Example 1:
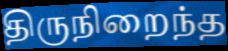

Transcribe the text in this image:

திருநிறைந்த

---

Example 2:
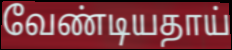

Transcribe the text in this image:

வேண்டியதாய்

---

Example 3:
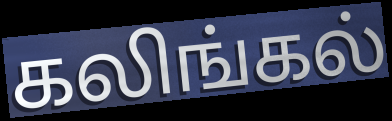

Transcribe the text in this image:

கலிங்கல்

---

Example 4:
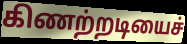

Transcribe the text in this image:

கிணற்றடியைச்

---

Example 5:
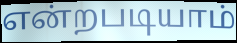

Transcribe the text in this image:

என்றபடியாம்